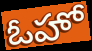
ఓహో